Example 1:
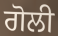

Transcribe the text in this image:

ਗੋਲੀ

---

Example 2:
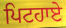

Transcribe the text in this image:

ਪਿਟਹਾਏ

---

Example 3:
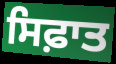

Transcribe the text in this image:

ਸਿਫ਼ਾਤ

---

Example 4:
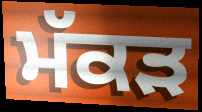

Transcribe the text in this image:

ਮੱਕੜ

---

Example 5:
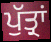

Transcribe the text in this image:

ਪੁੱਤ੍ਰਾਂ